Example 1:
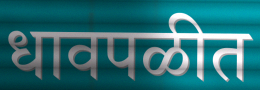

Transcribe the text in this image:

धावपळीत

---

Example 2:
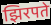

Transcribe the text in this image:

झिरपते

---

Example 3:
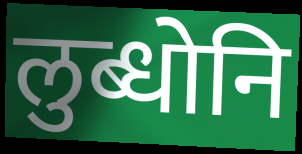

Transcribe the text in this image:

लुब्धोनि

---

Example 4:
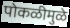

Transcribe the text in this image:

पोकळीमुळे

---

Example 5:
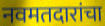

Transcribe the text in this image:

नवमतदारांचा